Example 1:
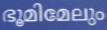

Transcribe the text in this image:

ഭൂമിമേലും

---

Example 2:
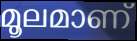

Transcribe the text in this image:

മൂലമാണ്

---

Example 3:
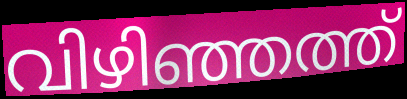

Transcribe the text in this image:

വിഴിഞ്ഞത്ത്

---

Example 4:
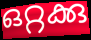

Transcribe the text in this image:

ഒറ്റക്കു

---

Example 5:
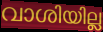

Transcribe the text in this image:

വാശിയില്ല